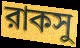
রাকসু